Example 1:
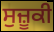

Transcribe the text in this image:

ਸੁਜ਼ੂਕੀ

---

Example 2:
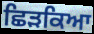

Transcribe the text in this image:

ਛਿੜਕਿਆ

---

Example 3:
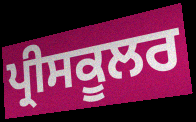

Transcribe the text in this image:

ਪ੍ਰੀਸਕੂਲਰ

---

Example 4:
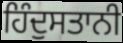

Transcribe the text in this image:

ਹਿੰਦੁਸਤਾਨੀ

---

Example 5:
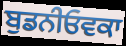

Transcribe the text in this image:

ਬੁਡਨੀਓਵਕਾ